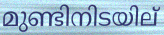
മുണ്ടിനിടയില്